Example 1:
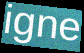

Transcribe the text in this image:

igne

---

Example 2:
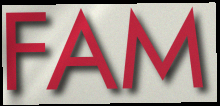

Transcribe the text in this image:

FAM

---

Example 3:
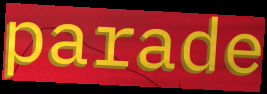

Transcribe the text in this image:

parade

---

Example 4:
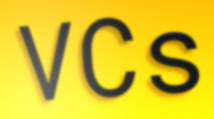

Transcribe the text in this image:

VCs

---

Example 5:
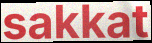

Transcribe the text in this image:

sakkat